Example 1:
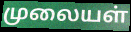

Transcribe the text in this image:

முலையள்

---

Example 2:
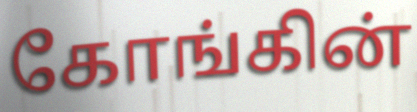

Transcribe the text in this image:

கோங்கின்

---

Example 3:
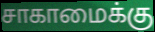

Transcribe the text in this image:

சாகாமைக்கு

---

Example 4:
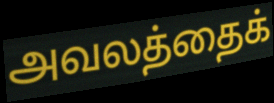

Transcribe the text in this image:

அவலத்தைக்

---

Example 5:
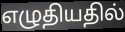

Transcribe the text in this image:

எழுதியதில்